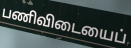
பணிவிடையைப்